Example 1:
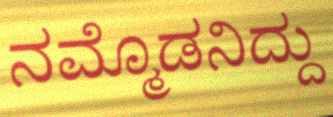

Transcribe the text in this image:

ನಮ್ಮೊಡನಿದ್ದು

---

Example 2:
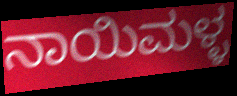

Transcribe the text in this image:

ನಾಯಿಮಳ್ಳ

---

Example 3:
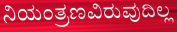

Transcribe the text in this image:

ನಿಯಂತ್ರಣವಿರುವುದಿಲ್ಲ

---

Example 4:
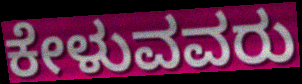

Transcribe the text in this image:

ಕೇಳುವವರು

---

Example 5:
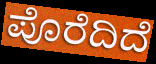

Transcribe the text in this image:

ಪೊರೆದಿದೆ